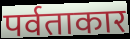
पर्वताकार